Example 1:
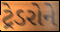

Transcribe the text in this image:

ટ્રેડરોને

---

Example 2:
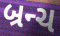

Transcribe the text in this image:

બ્રન્ચ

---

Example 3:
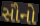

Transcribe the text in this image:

સૌનો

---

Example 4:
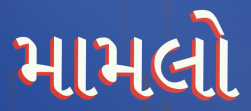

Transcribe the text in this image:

મામલો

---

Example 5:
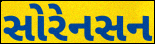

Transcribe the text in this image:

સોરેનસન